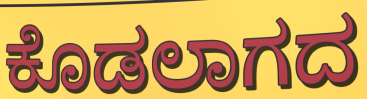
ಕೊಡಲಾಗದ